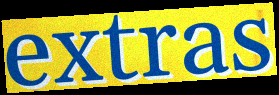
extras